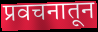
प्रवचनातून